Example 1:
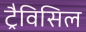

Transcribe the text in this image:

ट्रैविसिल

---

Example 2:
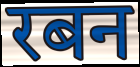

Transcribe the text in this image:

रबन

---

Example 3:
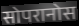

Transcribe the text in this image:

सोपरानोस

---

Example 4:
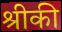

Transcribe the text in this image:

श्रीकी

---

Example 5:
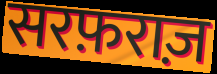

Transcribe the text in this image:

सरफ़राज़